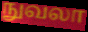
நுவலா